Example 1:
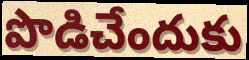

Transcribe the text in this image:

పొడిచేందుకు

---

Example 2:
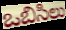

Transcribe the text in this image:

ఒబిసిలు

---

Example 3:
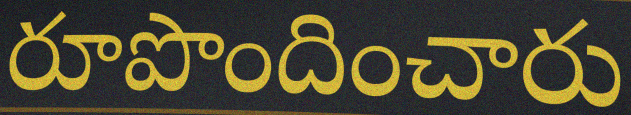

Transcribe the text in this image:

రూపొందించారు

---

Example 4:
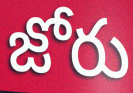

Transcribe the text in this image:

జోరు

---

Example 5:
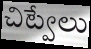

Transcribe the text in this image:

చిట్వేలు